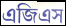
এজিএস